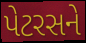
પેટરસને